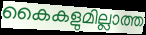
കൈകളുമില്ലാത്ത